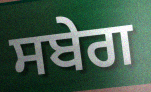
ਸਬੇਗ